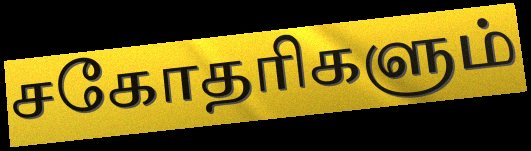
சகோதரிகளும்